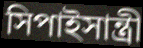
সিপাইসান্ত্রী